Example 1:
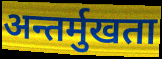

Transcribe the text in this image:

अन्तर्मुखता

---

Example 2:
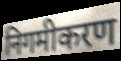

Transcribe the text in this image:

निगमीकरण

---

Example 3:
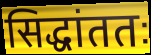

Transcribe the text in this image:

सिद्धांततः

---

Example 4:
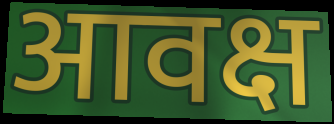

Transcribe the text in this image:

आवक्ष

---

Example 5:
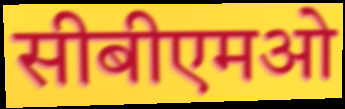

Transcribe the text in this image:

सीबीएमओ